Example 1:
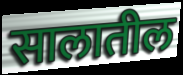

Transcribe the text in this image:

सालातील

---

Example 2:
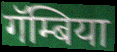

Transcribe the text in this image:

गॅम्बिया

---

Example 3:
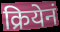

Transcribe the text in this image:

क्रियेनं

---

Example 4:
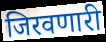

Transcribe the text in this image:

जिरवणारी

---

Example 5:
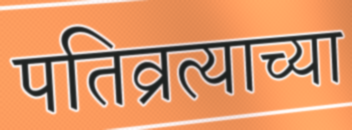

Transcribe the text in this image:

पतिव्रत्याच्या